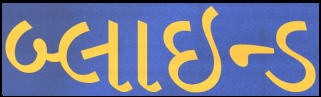
બ્લાઇન્ડ